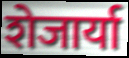
शेजार्या